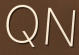
QN